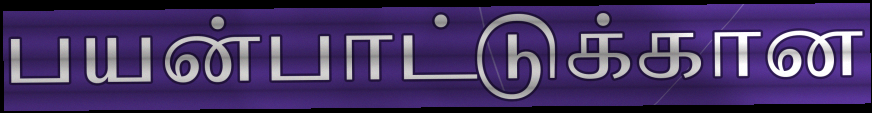
பயன்பாட்டுக்கான